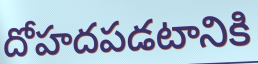
దోహదపడటానికి